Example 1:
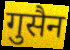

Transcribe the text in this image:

गुसैन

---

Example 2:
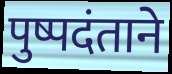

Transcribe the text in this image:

पुष्पदंताने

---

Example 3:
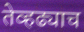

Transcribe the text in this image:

तेव्हढ्याच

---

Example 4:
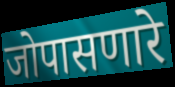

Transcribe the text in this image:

जोपासणारे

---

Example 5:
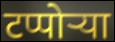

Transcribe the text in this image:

टप्पोऱ्या